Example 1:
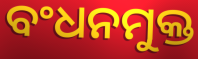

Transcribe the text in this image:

ବଂଧନମୁକ୍ତ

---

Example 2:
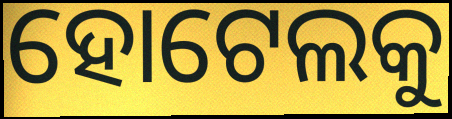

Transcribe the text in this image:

ହୋଟେଲକୁ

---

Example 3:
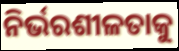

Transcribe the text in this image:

ନିର୍ଭରଶୀଳତାକୁ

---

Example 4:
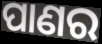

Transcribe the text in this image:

ପାଣର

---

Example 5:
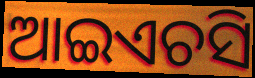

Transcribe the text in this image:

ଆଇଏଚସି